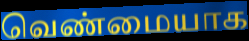
வெண்மையாக